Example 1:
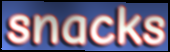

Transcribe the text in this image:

snacks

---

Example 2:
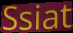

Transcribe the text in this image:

Ssiat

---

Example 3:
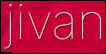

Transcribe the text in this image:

jivan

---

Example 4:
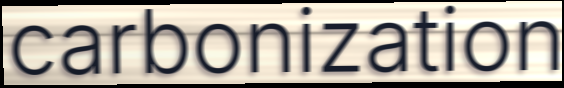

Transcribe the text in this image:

carbonization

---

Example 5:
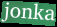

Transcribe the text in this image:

jonka